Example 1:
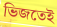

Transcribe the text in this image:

ভিজতেই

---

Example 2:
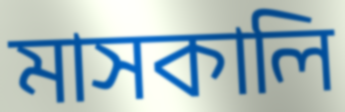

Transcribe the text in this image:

মাসকালি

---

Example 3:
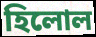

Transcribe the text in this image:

হিলোল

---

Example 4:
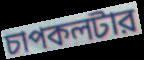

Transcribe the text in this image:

চাপকলটার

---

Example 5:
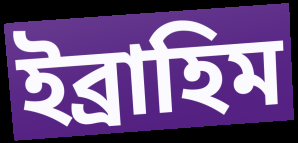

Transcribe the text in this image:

ইব্রাহিম